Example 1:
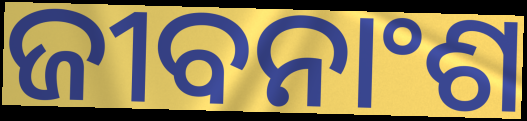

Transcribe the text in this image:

ଜୀବନାଂଶ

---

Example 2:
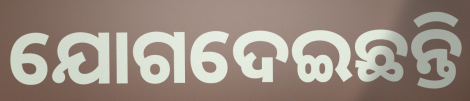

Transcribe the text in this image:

ଯୋଗଦେଇଛନ୍ତି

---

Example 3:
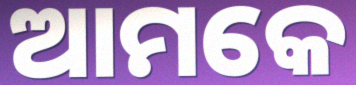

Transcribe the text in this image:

ଆମକେ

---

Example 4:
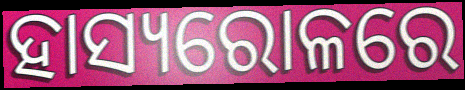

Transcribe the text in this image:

ହାସ୍ୟରୋଳରେ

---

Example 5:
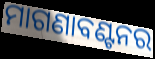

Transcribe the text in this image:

ମାଗଣାବଣ୍ଟନର